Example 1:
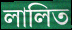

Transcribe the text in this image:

লালিত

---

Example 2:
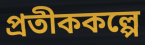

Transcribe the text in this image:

প্রতীককল্পে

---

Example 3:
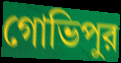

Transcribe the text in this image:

গোভিপুর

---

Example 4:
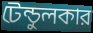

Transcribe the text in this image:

টেন্ডুলকার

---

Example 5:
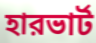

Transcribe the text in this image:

হারভার্ট